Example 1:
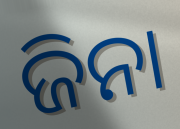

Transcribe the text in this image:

ଜିନା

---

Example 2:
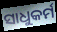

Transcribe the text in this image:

ସାଧୁକର୍ମ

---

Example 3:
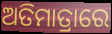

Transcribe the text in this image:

ଅତିମାତ୍ରାରେ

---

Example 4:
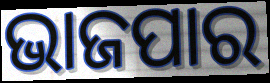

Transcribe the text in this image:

ଭାଜପାର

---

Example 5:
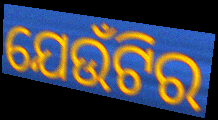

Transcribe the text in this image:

ଯେଉଁଟିର